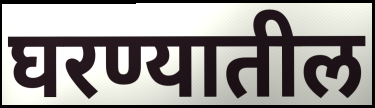
घरण्यातील